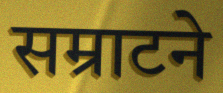
सम्राटने